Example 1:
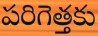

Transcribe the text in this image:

పరిగెత్తకు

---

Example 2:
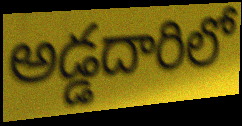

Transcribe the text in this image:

అడ్డదారిలో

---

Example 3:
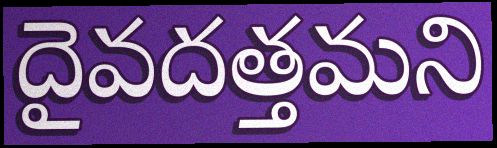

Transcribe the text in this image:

దైవదత్తమని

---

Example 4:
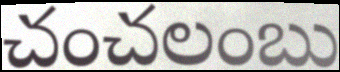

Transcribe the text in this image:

చంచలంబు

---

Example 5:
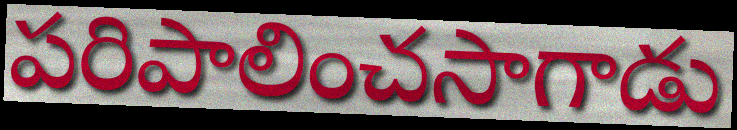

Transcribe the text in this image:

పరిపాలించసాగాడు